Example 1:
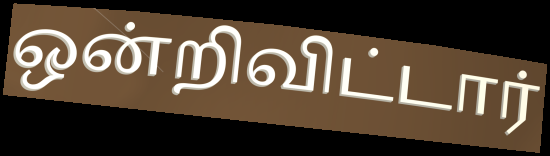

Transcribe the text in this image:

ஒன்றிவிட்டார்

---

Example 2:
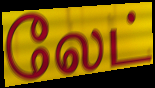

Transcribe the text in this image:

லேட்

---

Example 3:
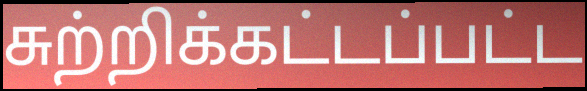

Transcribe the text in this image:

சுற்றிக்கட்டப்பட்ட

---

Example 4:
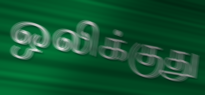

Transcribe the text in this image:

ஒலிக்குது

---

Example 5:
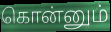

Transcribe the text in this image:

கொன்னும்